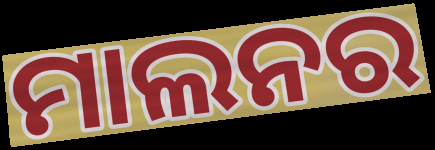
ମାଲନର